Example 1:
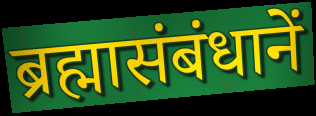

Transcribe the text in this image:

ब्रह्मासंबंधानें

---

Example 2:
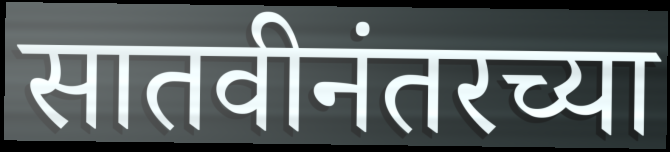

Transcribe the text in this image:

सातवीनंतरच्या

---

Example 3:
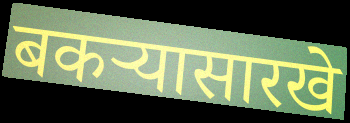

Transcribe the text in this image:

बकऱ्यासारखे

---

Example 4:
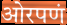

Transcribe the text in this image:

ओरपणं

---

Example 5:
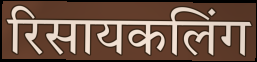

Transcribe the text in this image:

रिसायकलिंग